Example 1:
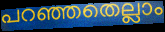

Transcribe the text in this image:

പറഞ്ഞതെല്ലാം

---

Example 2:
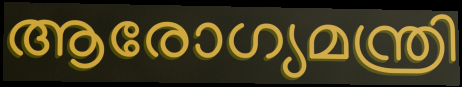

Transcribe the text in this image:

ആരോഗ്യമന്ത്രി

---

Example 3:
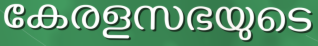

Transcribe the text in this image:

കേരളസഭയുടെ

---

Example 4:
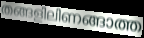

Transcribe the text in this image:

തങ്ങളിലിണങ്ങാത്ത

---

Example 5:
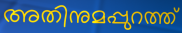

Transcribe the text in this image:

അതിനുമപ്പുറത്ത്